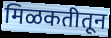
मिळकतीतून